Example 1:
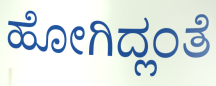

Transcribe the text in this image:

ಹೋಗಿದ್ಲಂತೆ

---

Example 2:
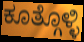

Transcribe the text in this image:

ಕೂತ್ಗೊಳ್ಳಿ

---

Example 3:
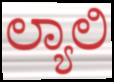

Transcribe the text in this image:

ಲ್ಯಾಲಿ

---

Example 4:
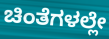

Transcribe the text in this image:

ಚಿಂತೆಗಳಲ್ಲೇ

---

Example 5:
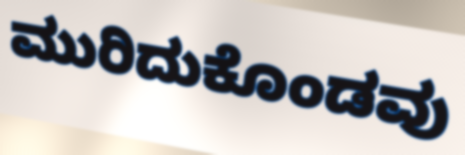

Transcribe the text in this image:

ಮುರಿದುಕೊಂಡವು